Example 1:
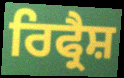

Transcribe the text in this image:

ਰਿਫ੍ਰੈਸ਼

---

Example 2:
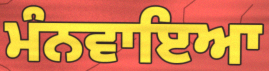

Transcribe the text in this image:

ਮੰਨਵਾਇਆ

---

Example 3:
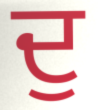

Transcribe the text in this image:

ਦੁ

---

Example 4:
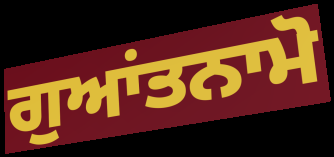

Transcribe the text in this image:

ਗੁਆਂਤਨਾਮੋ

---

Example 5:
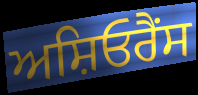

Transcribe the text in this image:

ਅਸ਼ਿਓਰੈਂਸ